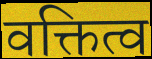
वक्तित्व